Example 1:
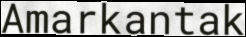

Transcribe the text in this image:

Amarkantak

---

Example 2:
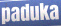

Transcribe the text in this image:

paduka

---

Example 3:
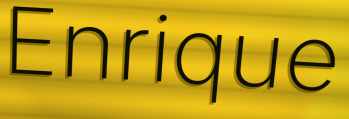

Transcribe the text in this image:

Enrique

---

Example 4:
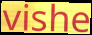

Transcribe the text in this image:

vishe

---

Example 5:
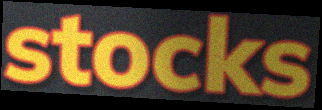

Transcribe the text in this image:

stocks